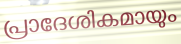
പ്രാദേശികമായും